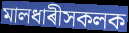
মালধাৰীসকলক